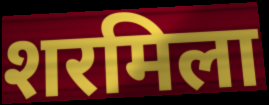
शरमिला